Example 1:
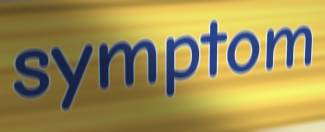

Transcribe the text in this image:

symptom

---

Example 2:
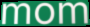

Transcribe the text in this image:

mom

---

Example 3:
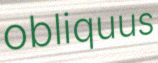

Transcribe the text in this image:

obliquus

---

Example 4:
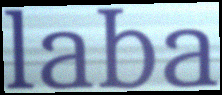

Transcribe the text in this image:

laba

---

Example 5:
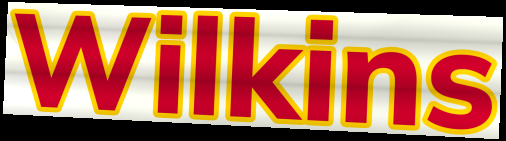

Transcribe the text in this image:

Wilkins